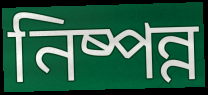
নিষ্পন্ন